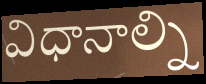
విధానాల్ని